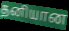
தனியான